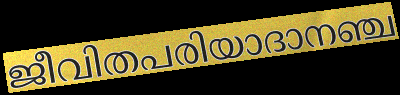
ജീവിതപരിയാദാനഞ്ച